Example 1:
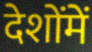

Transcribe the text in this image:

देशोंमें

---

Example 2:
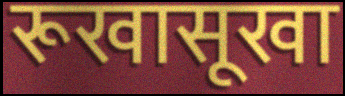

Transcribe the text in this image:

रूखासूखा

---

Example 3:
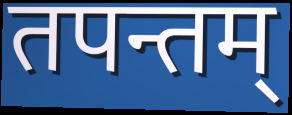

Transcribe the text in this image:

तपन्तम्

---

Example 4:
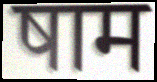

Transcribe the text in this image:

षाम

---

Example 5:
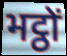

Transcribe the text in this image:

भट्ठों